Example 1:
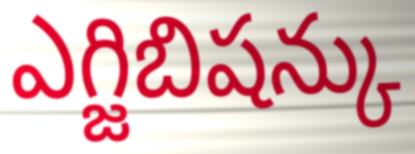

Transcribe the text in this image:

ఎగ్జిబిషన్కు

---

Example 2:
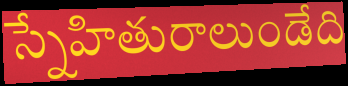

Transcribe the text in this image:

స్నేహితురాలుండేది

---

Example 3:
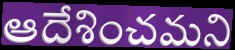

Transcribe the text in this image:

ఆదేశించమని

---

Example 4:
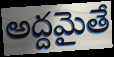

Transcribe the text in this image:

అద్దమైతే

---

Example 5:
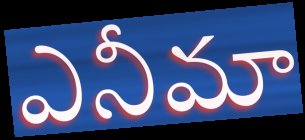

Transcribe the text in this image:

ఎనీమా